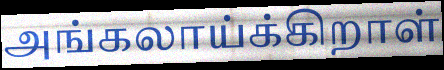
அங்கலாய்க்கிறாள்